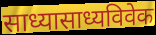
साध्यासाध्यविवेक